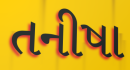
તનીષા